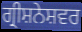
ਗ੍ਰੀਸ਼ਨੇਸ਼ਵਰ